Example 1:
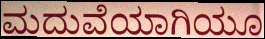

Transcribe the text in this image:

ಮದುವೆಯಾಗಿಯೂ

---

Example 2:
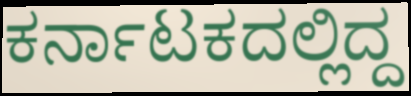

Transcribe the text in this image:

ಕರ್ನಾಟಕದಲ್ಲಿದ್ದ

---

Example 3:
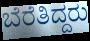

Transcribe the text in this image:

ಬೆರೆತಿದ್ದರು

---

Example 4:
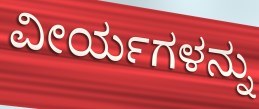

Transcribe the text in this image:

ವೀರ್ಯಗಳನ್ನು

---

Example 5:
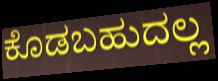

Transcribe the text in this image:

ಕೊಡಬಹುದಲ್ಲ